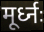
मूर्ध्नः